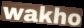
wakho